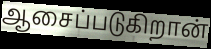
ஆசைப்படுகிறான்